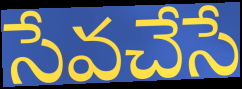
సేవచేసే